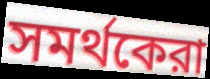
সমর্থকেরা